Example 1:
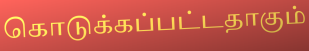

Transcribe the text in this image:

கொடுக்கப்பட்டதாகும்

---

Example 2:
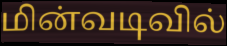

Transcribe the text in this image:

மின்வடிவில்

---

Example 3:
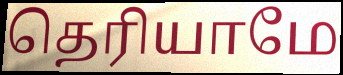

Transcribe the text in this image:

தெரியாமே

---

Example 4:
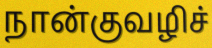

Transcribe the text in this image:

நான்குவழிச்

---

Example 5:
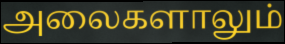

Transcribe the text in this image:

அலைகளாலும்